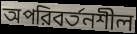
অপরিবর্তনশীল